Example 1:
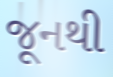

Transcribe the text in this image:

જૂનથી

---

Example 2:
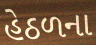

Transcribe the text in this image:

હેઠળના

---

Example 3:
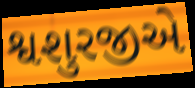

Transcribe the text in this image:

શ્વશુરજીએ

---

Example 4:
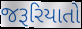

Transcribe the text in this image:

જરૂરિયાતો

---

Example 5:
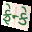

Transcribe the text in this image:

ફ્રેન્કે